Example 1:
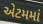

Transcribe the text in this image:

એટમમાં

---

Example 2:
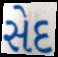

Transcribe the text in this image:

સેદ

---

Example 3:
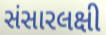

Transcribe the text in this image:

સંસારલક્ષી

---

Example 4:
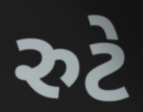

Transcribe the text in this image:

રુટે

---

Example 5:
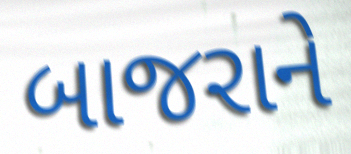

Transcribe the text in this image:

બાજરાને